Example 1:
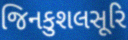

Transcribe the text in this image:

જિનકુશલસૂરિ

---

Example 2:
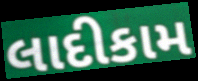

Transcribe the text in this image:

લાદીકામ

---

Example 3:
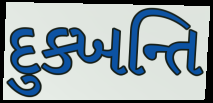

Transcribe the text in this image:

દુક્ખન્તિ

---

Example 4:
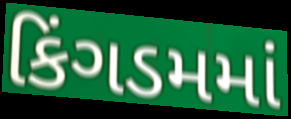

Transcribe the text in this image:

કિંગડમમાં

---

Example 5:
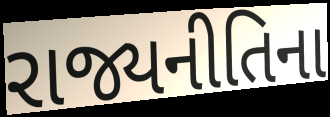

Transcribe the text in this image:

રાજ્યનીતિના